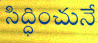
సిద్ధించునే